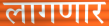
लागणार